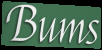
Bums